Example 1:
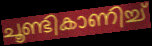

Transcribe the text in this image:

ചൂണ്ടികാണിച്ച്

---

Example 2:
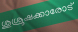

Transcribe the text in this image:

ശുശ്രൂഷക്കാരോട്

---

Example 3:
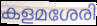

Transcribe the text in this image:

കളമശേരി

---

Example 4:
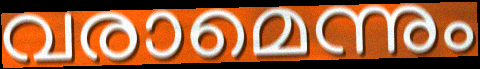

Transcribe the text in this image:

വരാമെന്നും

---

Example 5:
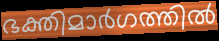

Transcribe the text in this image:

ഭക്തിമാർഗത്തിൽ